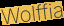
Wolffia